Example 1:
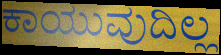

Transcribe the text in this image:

ಕಾಯುವುದಿಲ್ಲ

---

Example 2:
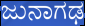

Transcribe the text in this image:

ಜುನಾಗಢ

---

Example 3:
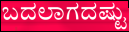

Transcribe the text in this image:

ಬದಲಾಗದಷ್ಟು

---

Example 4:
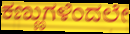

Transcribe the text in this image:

ಕಣ್ಣುಗಳಿಂದಲೇ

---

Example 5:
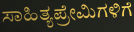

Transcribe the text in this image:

ಸಾಹಿತ್ಯಪ್ರೇಮಿಗಳಿಗೆ